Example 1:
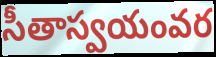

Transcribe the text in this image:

సీతాస్వయంవర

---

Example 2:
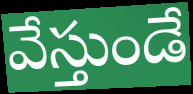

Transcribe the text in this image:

వేస్తుండే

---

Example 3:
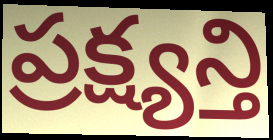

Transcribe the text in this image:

ప్రక్ష్యన్తి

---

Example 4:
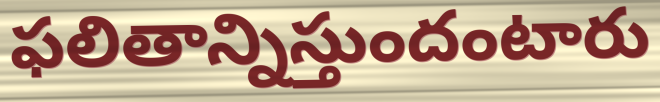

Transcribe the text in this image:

ఫలితాన్నిస్తుందంటారు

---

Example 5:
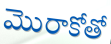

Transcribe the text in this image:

మొరాకోతో